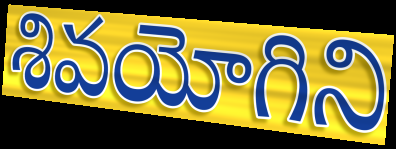
శివయోగిని